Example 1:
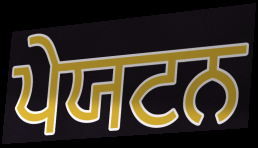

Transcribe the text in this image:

ਪੇਯਟਨ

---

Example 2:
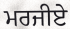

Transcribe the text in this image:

ਮਰਜੀਏ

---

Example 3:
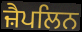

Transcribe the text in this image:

ਜ਼ੈਪਲਿਨ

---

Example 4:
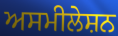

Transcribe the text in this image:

ਅਸਮੀਲੇਸ਼ਨ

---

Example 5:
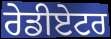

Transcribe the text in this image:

ਰੇਡੀਏਟਰ